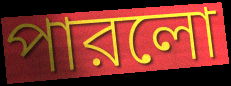
পারলো